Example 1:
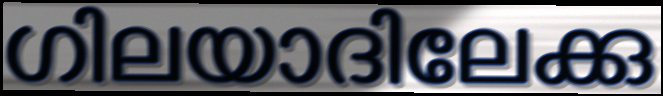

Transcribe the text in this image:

ഗിലയാദിലേക്കു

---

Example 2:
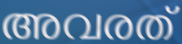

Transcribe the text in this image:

അവരത്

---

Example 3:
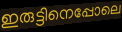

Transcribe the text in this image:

ഇരുട്ടിനെപ്പോലെ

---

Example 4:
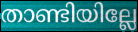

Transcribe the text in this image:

താണ്ടിയില്ലേ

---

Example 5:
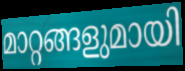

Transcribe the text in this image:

മാറ്റങ്ങളുമായി